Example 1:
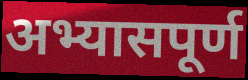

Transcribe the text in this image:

अभ्यासपूर्ण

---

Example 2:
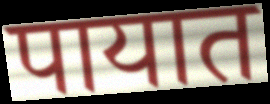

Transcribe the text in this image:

पायात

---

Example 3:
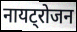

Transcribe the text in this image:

नायट्रोजन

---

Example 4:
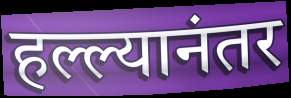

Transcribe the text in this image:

हल्ल्यानंतर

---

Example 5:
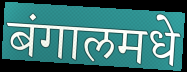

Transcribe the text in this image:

बंगालमधे